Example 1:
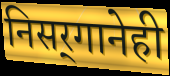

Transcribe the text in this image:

निसर्गानेही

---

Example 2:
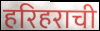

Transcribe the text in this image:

हरिहराची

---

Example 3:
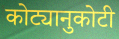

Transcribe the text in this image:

कोट्यानुकोटी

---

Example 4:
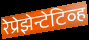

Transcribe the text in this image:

रेप्रेझेन्टेटिव्ह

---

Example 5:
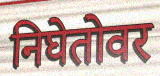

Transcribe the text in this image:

निघेतोवर